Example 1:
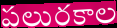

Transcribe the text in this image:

పలురకాల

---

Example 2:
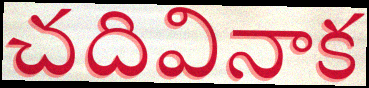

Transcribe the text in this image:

చదివినాక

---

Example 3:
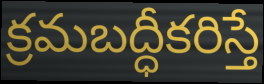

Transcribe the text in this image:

క్రమబద్ధీకరిస్తే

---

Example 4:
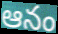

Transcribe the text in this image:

ఆనం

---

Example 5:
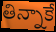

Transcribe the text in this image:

తిన్నాకే